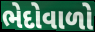
ભેદોવાળો